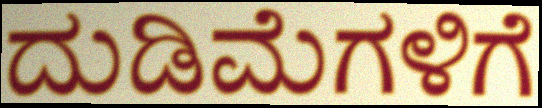
ದುಡಿಮೆಗಳಿಗೆ